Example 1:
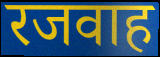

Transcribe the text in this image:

रजवाह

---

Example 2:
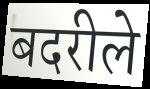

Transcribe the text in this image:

बदरीले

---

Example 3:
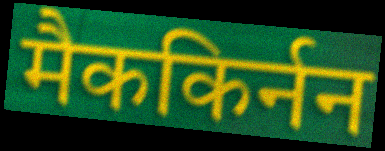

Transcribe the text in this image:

मैककिर्नन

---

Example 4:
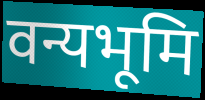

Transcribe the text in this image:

वन्यभूमि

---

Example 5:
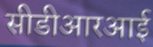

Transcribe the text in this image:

सीडीआरआई